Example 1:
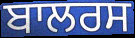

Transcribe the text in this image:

ਬਾਲਰਸ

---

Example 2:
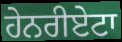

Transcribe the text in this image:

ਹੇਨਰੀਏਟਾ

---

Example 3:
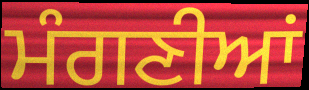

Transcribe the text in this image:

ਮੰਗਣੀਆਂ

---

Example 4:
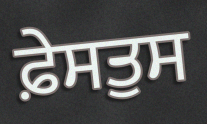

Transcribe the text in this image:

ਫ਼ੇਸਤੁਸ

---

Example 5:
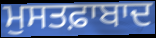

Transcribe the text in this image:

ਮੁਸਤਫ਼ਾਬਾਦ